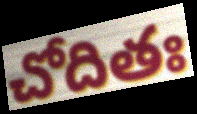
చోదితః